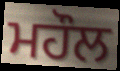
ਮਹੌਲ